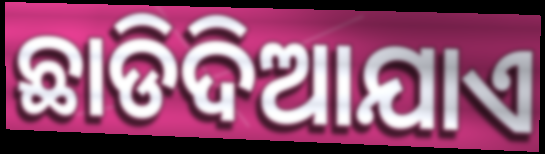
ଛାଡିଦିଆଯାଏ